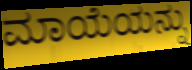
ಮಾಯೆಯನ್ನು